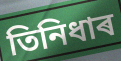
তিনিধাৰ